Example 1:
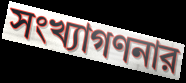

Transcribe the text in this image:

সংখ্যাগণনার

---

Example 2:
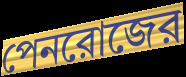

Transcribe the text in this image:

পেনরোজের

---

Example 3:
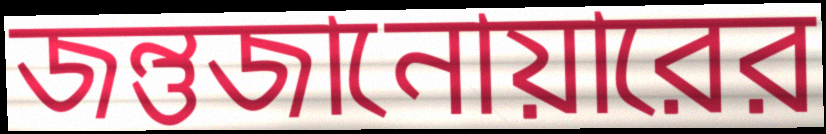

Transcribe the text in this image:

জন্তুজানোয়ারের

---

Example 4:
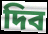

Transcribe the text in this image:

দিব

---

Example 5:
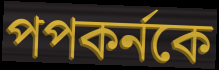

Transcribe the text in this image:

পপকর্নকে